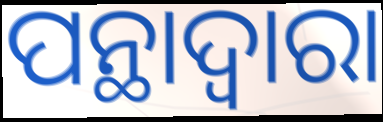
ପନ୍ଥାଦ୍ୱାରା